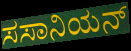
ಸಸಾನಿಯನ್